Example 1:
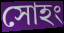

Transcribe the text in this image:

সোহং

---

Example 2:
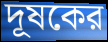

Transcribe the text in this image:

দূষকের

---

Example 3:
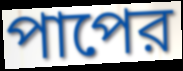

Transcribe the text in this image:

পাপের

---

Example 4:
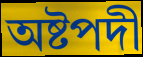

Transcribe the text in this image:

অষ্টপদী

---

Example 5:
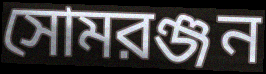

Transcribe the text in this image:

সোমরঞ্জন